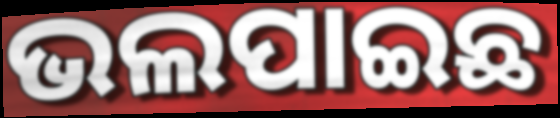
ଭଲପାଇଛ